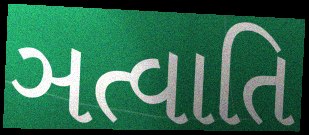
ઞત્વાતિ